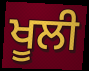
ਖੂਲੀ